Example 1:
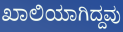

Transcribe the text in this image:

ಖಾಲಿಯಾಗಿದ್ದವು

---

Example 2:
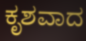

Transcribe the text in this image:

ಕೃಶವಾದ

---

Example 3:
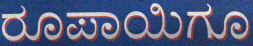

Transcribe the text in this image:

ರೂಪಾಯಿಗೂ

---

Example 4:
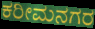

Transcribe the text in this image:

ಕರೀಮನಗರ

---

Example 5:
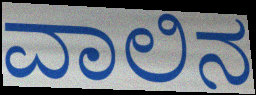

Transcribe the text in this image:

ವಾಲಿನ